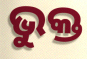
ଭୁକ୍ତ